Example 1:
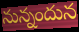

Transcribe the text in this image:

నున్నందున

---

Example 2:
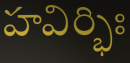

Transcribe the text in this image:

హవిర్భిః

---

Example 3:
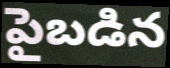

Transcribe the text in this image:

పైబడిన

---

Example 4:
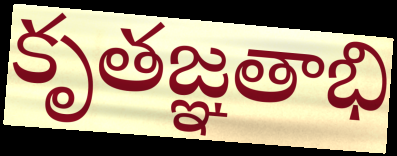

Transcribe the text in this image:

కృతజ్ఞతాభి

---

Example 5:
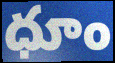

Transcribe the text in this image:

ధూం